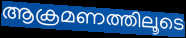
ആക്രമണത്തിലൂടെ